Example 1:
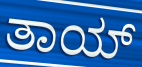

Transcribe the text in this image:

ತಾಯ್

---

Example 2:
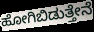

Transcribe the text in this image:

ಹೋಗಿಬಿಡುತ್ತೇನೆ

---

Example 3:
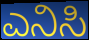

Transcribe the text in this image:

ಎನಿಸಿ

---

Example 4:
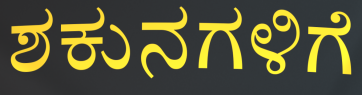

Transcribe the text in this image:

ಶಕುನಗಳಿಗೆ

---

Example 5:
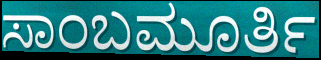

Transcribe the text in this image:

ಸಾಂಬಮೂರ್ತಿ